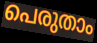
പെരുതാം